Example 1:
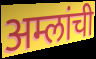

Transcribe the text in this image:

अम्‍लांची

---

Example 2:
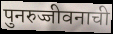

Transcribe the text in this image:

पुनरुज्जीवनाची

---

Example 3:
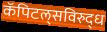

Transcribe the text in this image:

कॅपिटल्सविरुद्ध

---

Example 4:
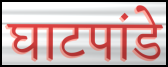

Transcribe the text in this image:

घाटपांडे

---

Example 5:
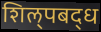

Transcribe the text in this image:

शिल्पबद्ध